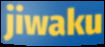
jiwaku